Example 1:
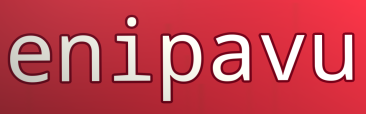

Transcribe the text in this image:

enipavu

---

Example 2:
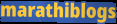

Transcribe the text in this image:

marathiblogs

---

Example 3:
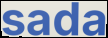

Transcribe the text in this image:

sada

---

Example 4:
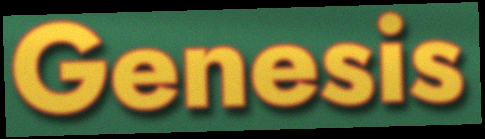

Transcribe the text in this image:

Genesis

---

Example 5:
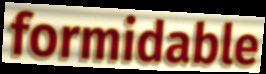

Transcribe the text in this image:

formidable